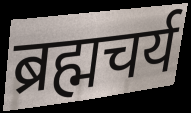
ब्रह्मचर्य